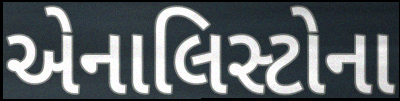
એનાલિસ્ટોના